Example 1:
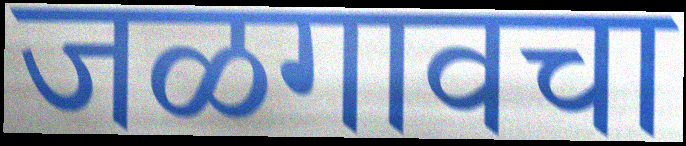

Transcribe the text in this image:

जळगावचा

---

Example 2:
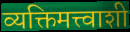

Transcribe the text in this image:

व्यक्तिमत्त्वाशी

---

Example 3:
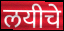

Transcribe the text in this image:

लयीचे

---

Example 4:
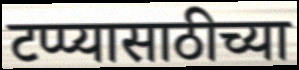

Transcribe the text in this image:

टप्प्यासाठीच्या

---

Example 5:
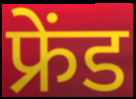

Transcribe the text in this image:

फ्रेंड